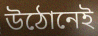
উঠোনেই